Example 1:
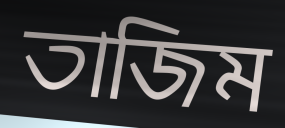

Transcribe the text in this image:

তাজিম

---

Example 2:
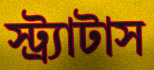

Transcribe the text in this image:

স্ট্র্যাটাস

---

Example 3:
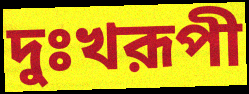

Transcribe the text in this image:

দুঃখরূপী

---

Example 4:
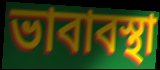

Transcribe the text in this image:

ভাবাবস্থা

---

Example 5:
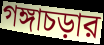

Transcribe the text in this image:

গঙ্গাচড়ার